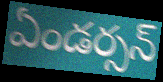
ఏండర్సన్